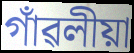
গাঁৱলীয়া